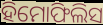
ହିମୋଫିଲିସ